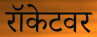
रॉकेटवर